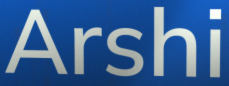
Arshi